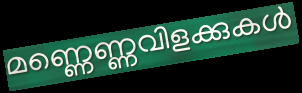
മണ്ണെണ്ണവിളക്കുകൾ